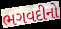
ભગવદીનો